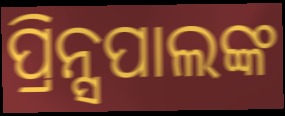
ପ୍ରିନ୍ସପାଲଙ୍କ